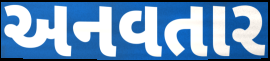
અનવતાર